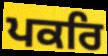
ਪਕਰਿ